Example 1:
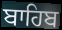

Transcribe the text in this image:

ਬਾਹਿਬ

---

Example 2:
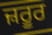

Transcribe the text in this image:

ਜ਼ਰੂਰ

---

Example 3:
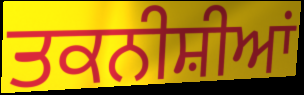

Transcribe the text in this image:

ਤਕਨੀਸ਼ੀਆਂ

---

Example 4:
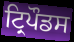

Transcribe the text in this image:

ਟ੍ਰਿਪੌਡਸ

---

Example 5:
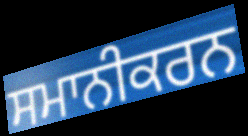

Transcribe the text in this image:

ਸਮਾਨੀਕਰਨ